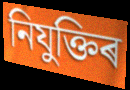
নিযুক্তিৰ